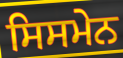
ਸਿਸਮੇਨ